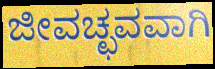
ಜೀವಚ್ಛವವಾಗಿ